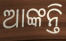
ଆଙ୍କନ୍ତି